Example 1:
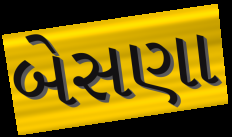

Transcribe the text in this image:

બેસણા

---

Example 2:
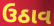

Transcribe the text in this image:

ઉઠાવ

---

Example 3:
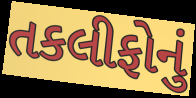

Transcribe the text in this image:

તકલીફોનું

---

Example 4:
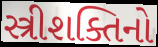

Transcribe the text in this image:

સ્ત્રીશક્તિનો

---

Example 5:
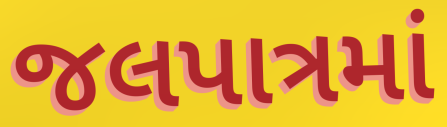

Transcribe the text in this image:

જલપાત્રમાં